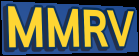
MMRV